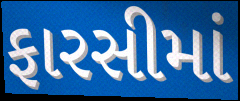
ફારસીમાં